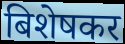
बिशेषकर